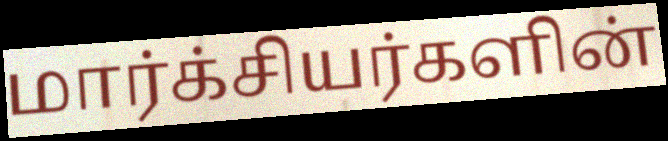
மார்க்சியர்களின்